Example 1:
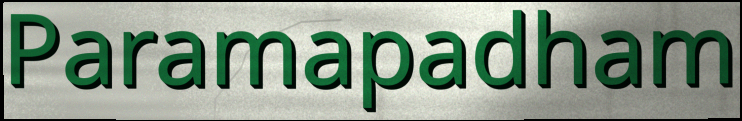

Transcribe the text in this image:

Paramapadham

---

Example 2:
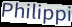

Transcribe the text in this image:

Philippi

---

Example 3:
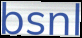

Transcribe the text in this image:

bsnl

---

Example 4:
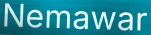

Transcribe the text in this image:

Nemawar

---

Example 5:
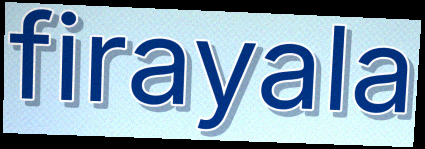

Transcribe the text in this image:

firayala